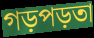
গড়পড়তা